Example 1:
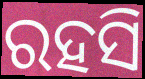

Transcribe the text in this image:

ରହସି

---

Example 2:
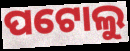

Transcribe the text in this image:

ପଟୋଲୁ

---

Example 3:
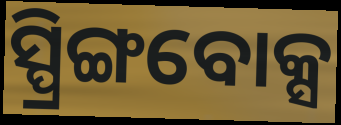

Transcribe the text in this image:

ସ୍ପ୍ରିଙ୍ଗବୋକ୍ସ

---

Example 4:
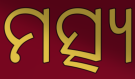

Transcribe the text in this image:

ମତ୍ସ୍ୟ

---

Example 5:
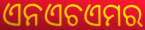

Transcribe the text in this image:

ଏନଏଚଏମର